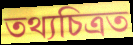
তথ্যচিত্ৰত